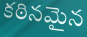
కఠినమైన